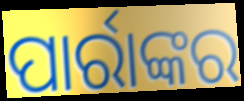
ପାର୍ରାଙ୍କର